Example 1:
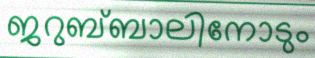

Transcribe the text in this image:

ജറുബ്‌ബാലിനോടും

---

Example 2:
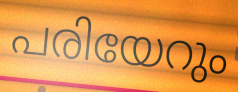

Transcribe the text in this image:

പരിയേറും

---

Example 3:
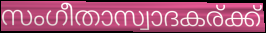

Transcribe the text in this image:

സംഗീതാസ്വാദകര്ക്ക്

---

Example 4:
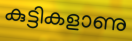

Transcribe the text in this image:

കുട്ടികളാണു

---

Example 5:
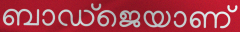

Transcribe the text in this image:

ബാഡ്ജെയാണ്